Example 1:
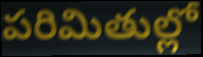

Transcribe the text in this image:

పరిమితుల్లో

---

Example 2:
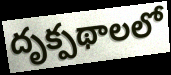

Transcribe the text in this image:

దృక్పథాలలో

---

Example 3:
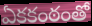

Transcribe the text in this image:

ఏకకంఠంతో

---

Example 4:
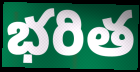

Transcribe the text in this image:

భరిత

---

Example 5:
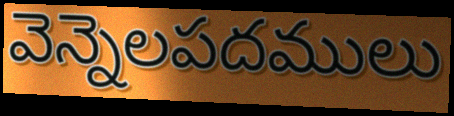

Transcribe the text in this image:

వెన్నెలపదములు